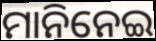
ମାନିନେଇ